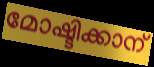
മോഷ്ടിക്കാന്